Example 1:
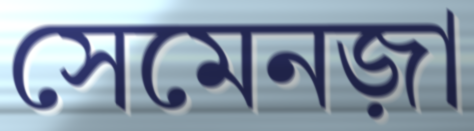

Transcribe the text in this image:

সেমেনজ়া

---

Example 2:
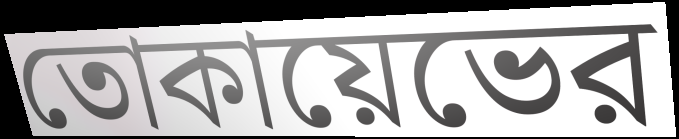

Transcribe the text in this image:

তোকায়েভের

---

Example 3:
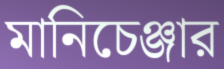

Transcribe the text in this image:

মানিচেঞ্জার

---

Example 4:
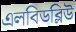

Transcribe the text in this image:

এলবিডব্লিউ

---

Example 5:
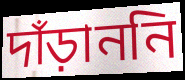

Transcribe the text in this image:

দাঁড়াননি